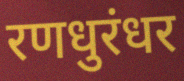
रणधुरंधर